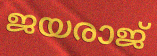
ജയരാജ്